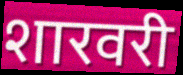
शारवरी